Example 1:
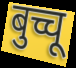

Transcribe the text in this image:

बुच्चू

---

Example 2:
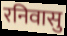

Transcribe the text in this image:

रनिवासु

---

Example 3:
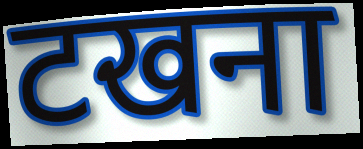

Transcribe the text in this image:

टखना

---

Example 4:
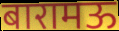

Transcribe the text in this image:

बारामऊ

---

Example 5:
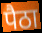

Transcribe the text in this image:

पैठा